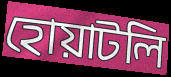
হোয়াটলি